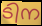
ടിന